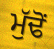
ਮੁੱਢੋਂ